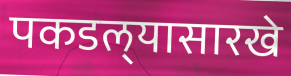
पकडल्यासारखे